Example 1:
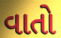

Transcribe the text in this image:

વાતો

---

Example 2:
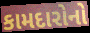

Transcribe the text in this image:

કામદારોનો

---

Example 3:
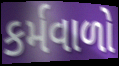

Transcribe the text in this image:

કર્મવાળો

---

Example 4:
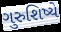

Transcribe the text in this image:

ગુરુશિષ્યે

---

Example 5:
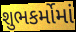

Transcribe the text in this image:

શુભકર્મોમાં